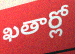
ఖతార్లో